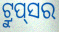
ଟ୍ରୁପ୍‌ସର